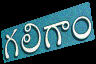
గలిగాం